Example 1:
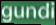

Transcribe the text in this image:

gundi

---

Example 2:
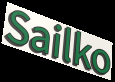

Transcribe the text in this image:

Sailko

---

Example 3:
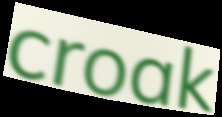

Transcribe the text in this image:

croak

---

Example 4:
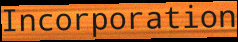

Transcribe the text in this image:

Incorporation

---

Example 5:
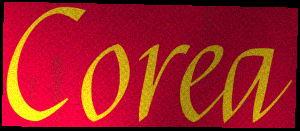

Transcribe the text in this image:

Corea